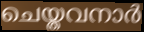
ചെയ്തവനാർ